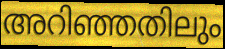
അറിഞ്ഞതിലും